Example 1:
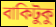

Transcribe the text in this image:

বাকিটুকু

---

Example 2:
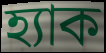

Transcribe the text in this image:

হ্যাক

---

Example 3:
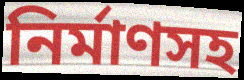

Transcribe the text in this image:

নির্মাণসহ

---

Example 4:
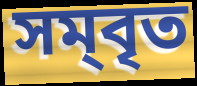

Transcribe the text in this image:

সম্‌বৃত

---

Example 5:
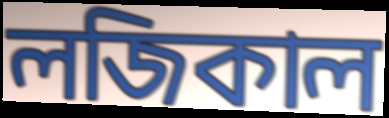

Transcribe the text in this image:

লজিকাল